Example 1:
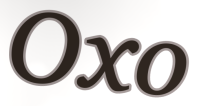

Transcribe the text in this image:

Oxo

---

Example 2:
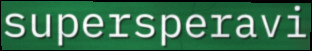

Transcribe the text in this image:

supersperavi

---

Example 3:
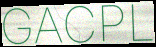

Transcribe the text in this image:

GACPL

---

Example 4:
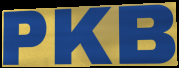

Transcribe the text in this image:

PKB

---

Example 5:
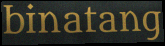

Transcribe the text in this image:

binatang